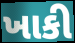
ખાકી